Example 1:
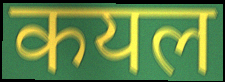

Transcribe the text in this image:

कयल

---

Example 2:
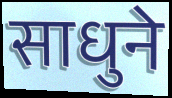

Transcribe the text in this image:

साधुने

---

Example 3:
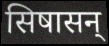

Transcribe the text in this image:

सिषासन्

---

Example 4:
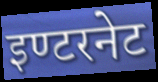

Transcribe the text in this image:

इण्टरनेट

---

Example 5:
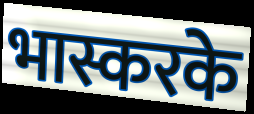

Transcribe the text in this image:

भास्करके